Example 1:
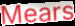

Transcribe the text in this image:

Mears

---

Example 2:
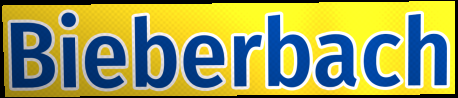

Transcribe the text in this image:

Bieberbach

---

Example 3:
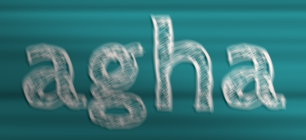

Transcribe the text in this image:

agha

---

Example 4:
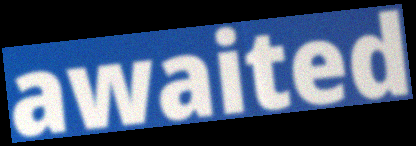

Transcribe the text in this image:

awaited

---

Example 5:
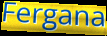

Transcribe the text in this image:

Fergana